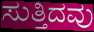
ಸುತ್ತಿದವು